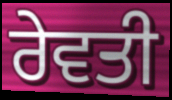
ਰੇਵਤੀ